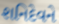
શનિદેવને